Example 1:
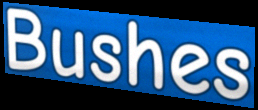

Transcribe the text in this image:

Bushes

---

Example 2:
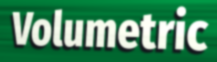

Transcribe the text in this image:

Volumetric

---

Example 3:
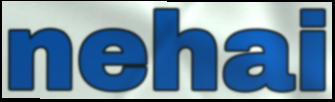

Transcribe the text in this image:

nehai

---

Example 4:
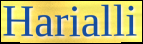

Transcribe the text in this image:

Harialli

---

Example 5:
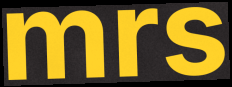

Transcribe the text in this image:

mrs